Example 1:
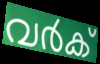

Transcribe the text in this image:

വർക്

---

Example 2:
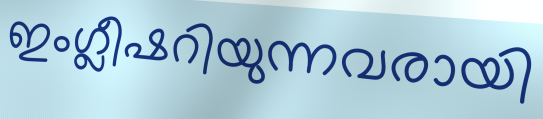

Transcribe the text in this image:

ഇംഗ്ലീഷറിയുന്നവരായി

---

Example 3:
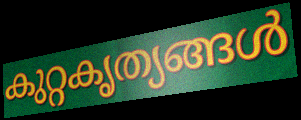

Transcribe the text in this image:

കുറ്റകൃത്യങ്ങൾ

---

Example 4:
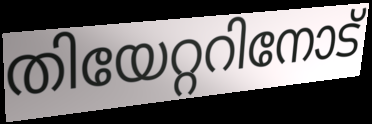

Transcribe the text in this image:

തിയേറ്ററിനോട്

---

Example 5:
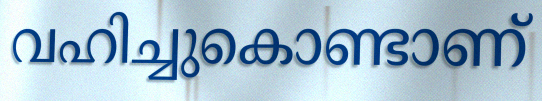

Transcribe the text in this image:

വഹിച്ചുകൊണ്ടാണ്